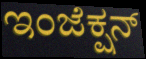
ಇಂಜೆಕ್ಷನ್